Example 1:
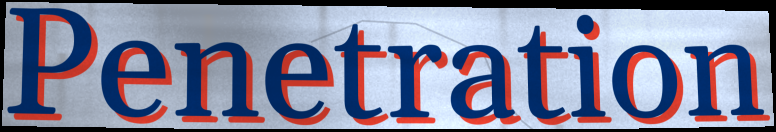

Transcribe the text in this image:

Penetration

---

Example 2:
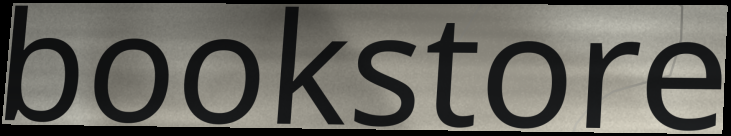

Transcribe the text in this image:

bookstore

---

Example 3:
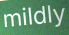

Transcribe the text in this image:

mildly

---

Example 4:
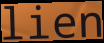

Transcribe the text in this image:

lien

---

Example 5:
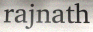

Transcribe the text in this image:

rajnath